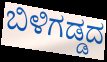
ಬಿಳಿಗಡ್ಡದ